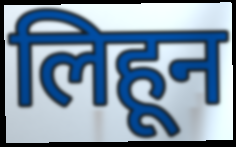
लिहून